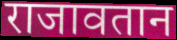
राजावतान